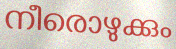
നീരൊഴുക്കും